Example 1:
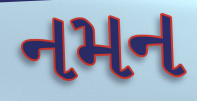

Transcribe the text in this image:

નમન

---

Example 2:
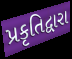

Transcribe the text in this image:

પ્રકૃતિદ્વારા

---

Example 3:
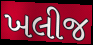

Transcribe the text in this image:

ખલીજ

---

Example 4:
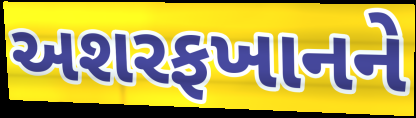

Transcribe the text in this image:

અશરફખાનને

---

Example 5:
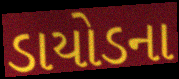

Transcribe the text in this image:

ડાયોડના